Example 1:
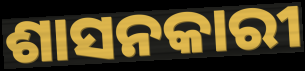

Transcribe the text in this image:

ଶାସନକାରୀ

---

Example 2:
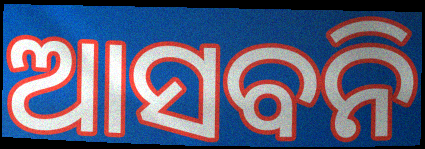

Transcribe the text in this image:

ଆସବନି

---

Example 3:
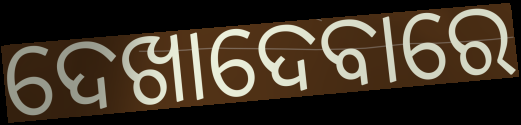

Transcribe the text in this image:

ଦେଖାଦେବାରେ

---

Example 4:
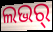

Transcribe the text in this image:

ଲଭର୍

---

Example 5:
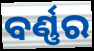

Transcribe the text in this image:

ବର୍ଣ୍ଣର